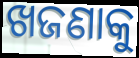
ଖଜଣାକୁ